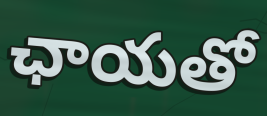
ఛాయతో